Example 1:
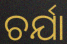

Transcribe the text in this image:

ଚର୍ଯା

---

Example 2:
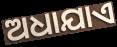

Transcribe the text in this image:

ଅଧାଯାଏ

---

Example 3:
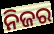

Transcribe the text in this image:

ନିଜର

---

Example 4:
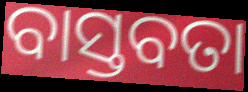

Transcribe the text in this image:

ବାସ୍ତବତା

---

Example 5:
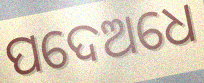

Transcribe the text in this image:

ପଦେଅଧେ